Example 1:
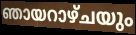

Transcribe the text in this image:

ഞായറാഴ്ചയും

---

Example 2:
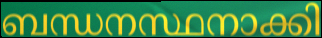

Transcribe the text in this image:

ബന്ധനസ്ഥനാക്കി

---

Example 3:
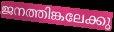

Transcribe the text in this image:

ജനത്തിങ്കലേക്കു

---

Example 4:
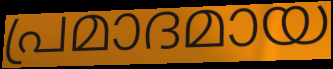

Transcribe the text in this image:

പ്രമാദമായ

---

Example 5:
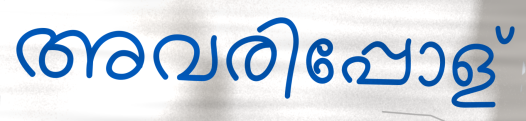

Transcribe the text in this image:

അവരിപ്പോള്